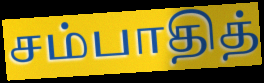
சம்பாதித்